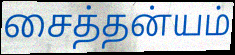
சைத்தன்யம்